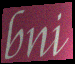
bni